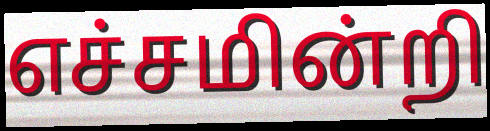
எச்சமின்றி